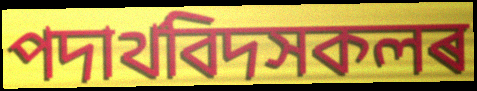
পদাৰ্থবিদসকলৰ